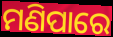
ମଣିପାରେ